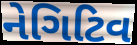
નેગિટિવ